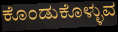
ಕೊಂಡುಕೊಳ್ಳುವ